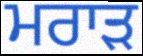
ਮਰਾੜ